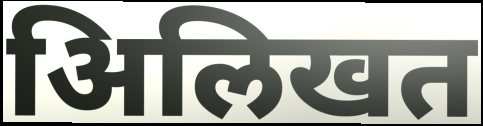
अिलिखत